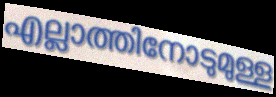
എല്ലാത്തിനോടുമുള്ള